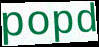
popd